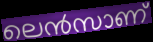
ലെൻസാണ്